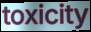
toxicity